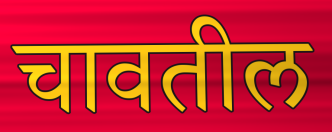
चावतील